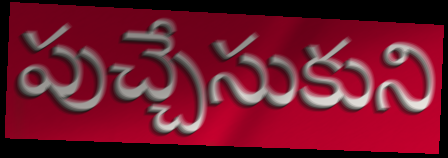
పుచ్చేసుకుని